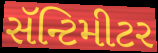
સૅન્ટિમીટર